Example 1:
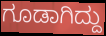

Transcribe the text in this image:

ಗೂಡಾಗಿದ್ದು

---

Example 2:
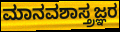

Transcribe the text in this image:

ಮಾನವಶಾಸ್ತ್ರಜ್ಞರ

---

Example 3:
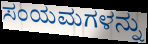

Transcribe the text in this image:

ಸಂಯಮಗಳನ್ನು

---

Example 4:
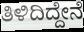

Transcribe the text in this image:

ತಿಳಿದಿದ್ದೇನೆ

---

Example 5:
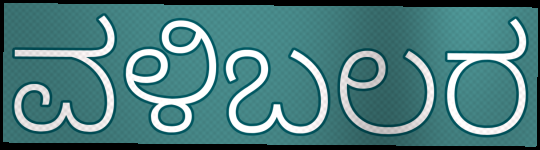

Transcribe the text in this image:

ವಳಿಬಲರ